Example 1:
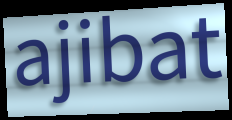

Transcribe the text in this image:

ajibat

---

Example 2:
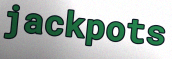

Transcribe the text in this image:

jackpots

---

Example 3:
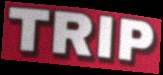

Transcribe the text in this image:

TRIP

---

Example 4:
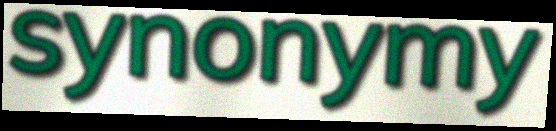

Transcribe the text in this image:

synonymy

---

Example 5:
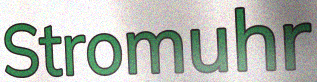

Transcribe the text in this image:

Stromuhr